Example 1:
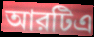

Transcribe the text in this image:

আরটিএ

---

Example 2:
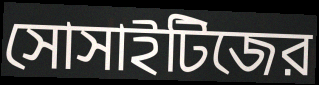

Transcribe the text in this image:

সোসাইটিজের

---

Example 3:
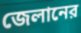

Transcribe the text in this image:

জেলানের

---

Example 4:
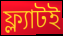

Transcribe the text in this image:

ফ্ল্যাটই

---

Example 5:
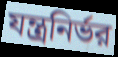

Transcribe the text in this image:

যন্ত্রনির্ভর